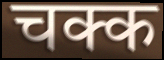
चक्‍क